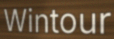
Wintour